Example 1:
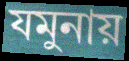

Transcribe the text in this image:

যমুনায়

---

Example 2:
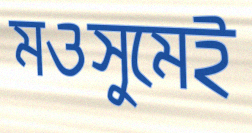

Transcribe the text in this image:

মওসুমেই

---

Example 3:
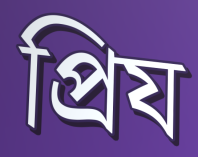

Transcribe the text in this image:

প্রিয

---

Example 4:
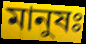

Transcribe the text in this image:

মানুষঃ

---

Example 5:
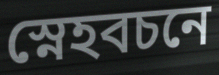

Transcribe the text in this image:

স্নেহবচনে